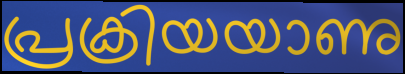
പ്രക്രിയയാണു